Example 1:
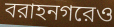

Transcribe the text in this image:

বরাহনগরেও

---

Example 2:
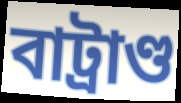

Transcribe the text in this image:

বাট্রাণ্ড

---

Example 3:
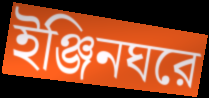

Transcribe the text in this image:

ইঞ্জিনঘরে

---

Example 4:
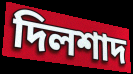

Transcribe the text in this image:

দিলশাদ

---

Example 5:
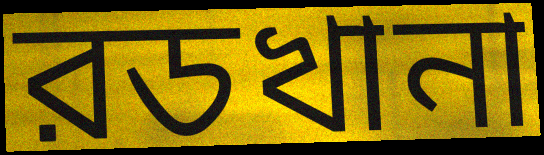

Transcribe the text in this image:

রডখানা